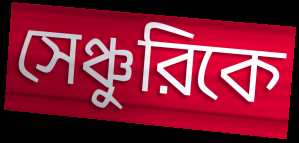
সেঞ্চুরিকে